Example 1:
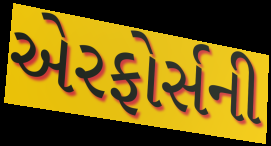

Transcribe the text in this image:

એરફોર્સની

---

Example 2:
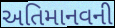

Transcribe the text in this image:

અતિમાનવની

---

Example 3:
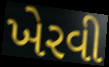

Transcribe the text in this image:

ખેરવી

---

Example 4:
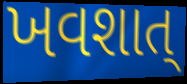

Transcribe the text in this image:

ખવશાત્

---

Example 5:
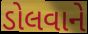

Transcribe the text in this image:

ડોલવાને